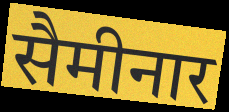
सैमीनार